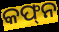
କଫ୍‌ନ